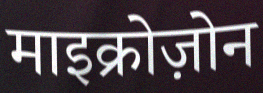
माइक्रोज़ोन